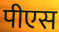
पीएस